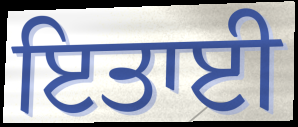
ਇਤਾਈ